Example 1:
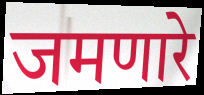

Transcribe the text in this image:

जमणारे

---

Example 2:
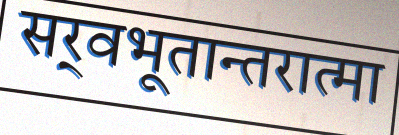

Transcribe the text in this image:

सर्वभूतान्तरात्मा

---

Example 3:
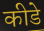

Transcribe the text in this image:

कीडे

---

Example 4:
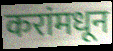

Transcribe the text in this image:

करांमधून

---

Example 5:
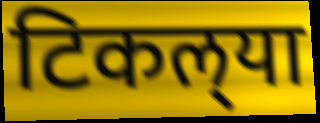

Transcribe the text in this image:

टिकल्या